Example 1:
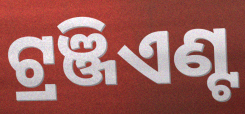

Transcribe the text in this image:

ଟ୍ରଞ୍ଜିଏଣ୍ଟ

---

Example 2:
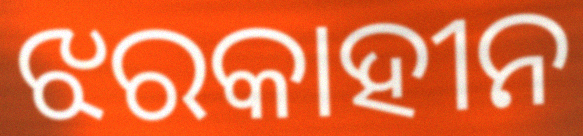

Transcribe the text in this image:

ଝରକାହୀନ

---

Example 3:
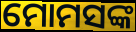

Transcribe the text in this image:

ମୋମସଙ୍କ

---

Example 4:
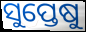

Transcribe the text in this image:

ସୁପ୍ତେଷୁ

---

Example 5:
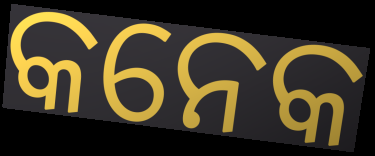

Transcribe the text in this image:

କନେକ